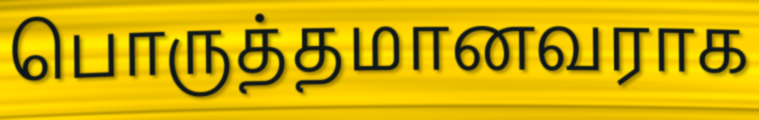
பொருத்தமானவராக